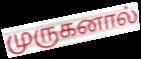
முருகனால்